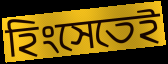
হিংসেতেই